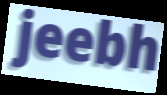
jeebh